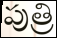
పుత్రి